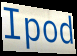
Ipod